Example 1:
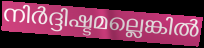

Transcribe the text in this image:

നിർദ്ദിഷ്ടമല്ലെങ്കിൽ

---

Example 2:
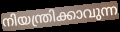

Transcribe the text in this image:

നിയന്ത്രിക്കാവുന്ന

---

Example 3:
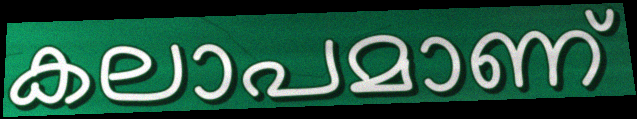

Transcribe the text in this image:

കലാപമാണ്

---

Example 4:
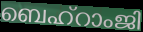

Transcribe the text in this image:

ബെഹ്റാംജി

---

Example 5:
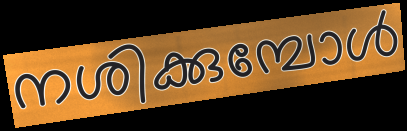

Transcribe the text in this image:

നശിക്കുമ്പോൾ